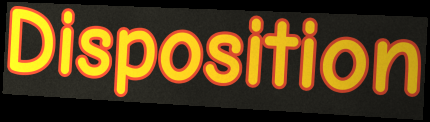
Disposition